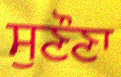
ਸੁਣੌਣਾ